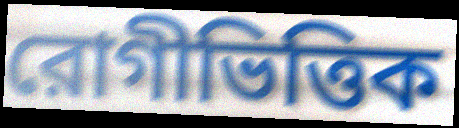
রোগীভিত্তিক